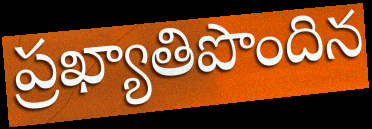
ప్రఖ్యాతిపొందిన